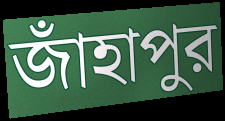
জাঁহাপুর